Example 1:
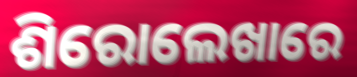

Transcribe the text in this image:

ଶିରୋଲେଖାରେ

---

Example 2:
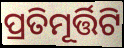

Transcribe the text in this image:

ପ୍ରତିମୂର୍ତ୍ତିଟି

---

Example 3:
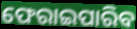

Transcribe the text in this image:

ଫେରାଇପାରିବ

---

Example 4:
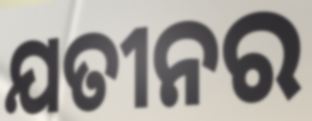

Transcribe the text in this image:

ଯତୀନର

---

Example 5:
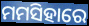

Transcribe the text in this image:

ମମସିହାରେ